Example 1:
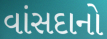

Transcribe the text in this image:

વાંસદાનો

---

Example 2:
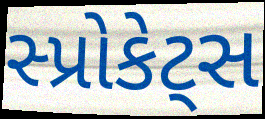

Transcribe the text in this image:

સ્પ્રોકેટ્સ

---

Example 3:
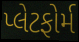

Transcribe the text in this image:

પ્લેટફોર્મ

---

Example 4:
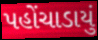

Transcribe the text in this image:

પહોંચાડાયું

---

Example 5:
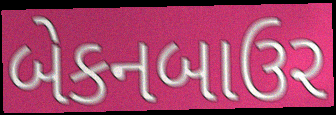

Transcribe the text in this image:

બેકનબાઉર